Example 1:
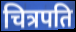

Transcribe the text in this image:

चित्रपति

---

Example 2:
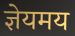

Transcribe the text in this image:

ज्ञेयमय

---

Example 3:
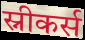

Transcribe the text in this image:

स्नीकर्स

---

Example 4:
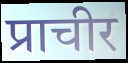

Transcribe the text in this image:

प्राचीर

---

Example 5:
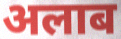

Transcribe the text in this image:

अलाब